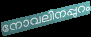
നോവലിനപ്പുറം